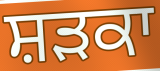
ਸ਼ੜਕਾ